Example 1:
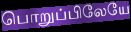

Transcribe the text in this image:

பொறுப்பிலேயே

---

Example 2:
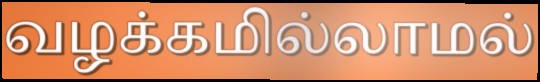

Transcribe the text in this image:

வழக்கமில்லாமல்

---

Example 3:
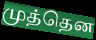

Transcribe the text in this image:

முத்தென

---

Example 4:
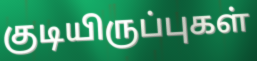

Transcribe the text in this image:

குடியிருப்புகள்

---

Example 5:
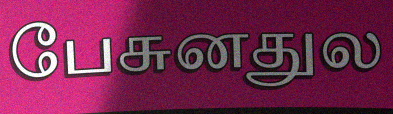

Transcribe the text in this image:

பேசுனதுல